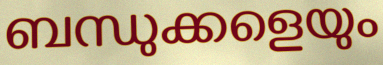
ബന്ധുക്കളെയും